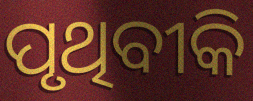
ପୃଥିବୀକି